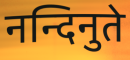
नन्दिनुते